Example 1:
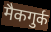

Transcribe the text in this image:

मैकगुर्क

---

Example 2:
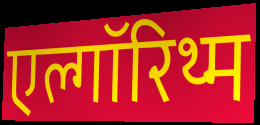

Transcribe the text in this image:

एल्गॉरिथ्म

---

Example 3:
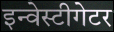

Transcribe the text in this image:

इन्वेस्टीगेटर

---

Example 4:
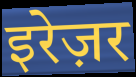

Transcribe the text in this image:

इरेज़र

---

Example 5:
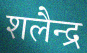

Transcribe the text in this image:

शलैन्द्र